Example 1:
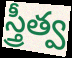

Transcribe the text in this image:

స్త్రీత్వ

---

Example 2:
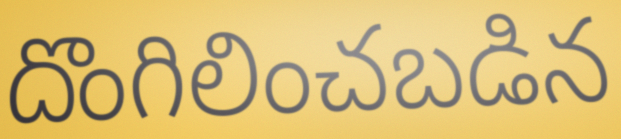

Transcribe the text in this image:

దొంగిలించబడిన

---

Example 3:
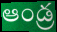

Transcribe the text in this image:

ఆండ్ర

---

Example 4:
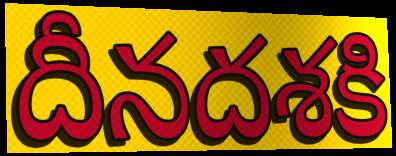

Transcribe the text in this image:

దీనదశకి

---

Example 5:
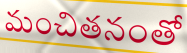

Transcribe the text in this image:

మంచితనంతో